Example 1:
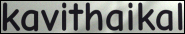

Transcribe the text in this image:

kavithaikal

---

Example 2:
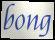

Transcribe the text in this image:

bong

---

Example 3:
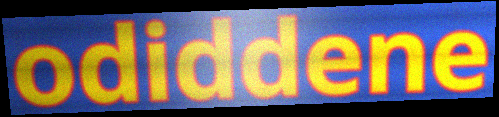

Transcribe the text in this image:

odiddene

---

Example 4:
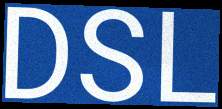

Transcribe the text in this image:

DSL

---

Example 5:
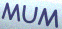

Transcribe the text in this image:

MUM